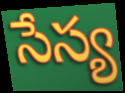
సేస్య